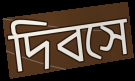
দিবসে